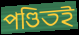
পণ্ডিতই